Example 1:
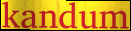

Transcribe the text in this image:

kandum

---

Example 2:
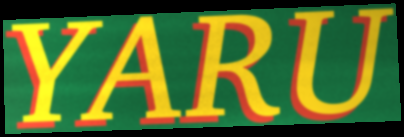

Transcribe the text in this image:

YARU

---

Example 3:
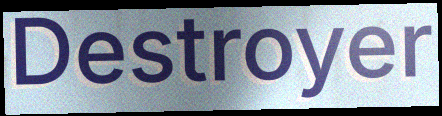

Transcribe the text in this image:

Destroyer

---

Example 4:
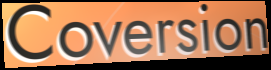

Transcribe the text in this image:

Coversion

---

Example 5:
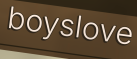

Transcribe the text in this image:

boyslove